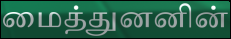
மைத்துனனின்